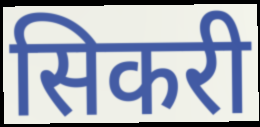
सिकरी